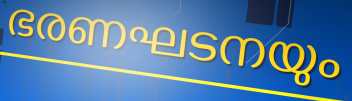
ഭരണഘടനയും